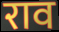
राव